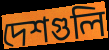
দেশগুলি